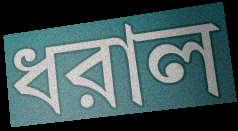
ধরাল